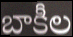
బాకీల